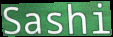
Sashi